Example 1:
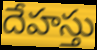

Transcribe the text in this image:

దేహస్తు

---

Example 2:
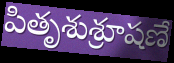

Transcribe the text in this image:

పితృశుశ్రూషణే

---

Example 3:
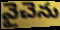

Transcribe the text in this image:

వైచెను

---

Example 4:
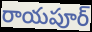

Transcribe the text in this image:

రాయపూర్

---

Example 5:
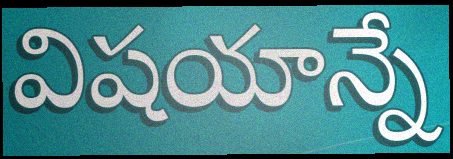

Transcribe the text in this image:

విషయాన్నే